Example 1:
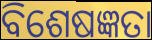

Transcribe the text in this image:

ବିଶେଷଜ୍ଞତା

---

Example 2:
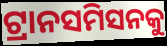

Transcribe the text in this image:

ଟ୍ରାନସମିସନକୁ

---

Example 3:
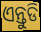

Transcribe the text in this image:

ଏନ୍ତୁଡି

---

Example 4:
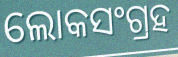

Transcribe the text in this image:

ଲୋକସଂଗ୍ରହ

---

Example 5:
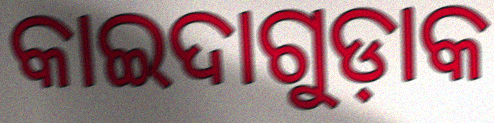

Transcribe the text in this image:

କାଇଦାଗୁଡ଼ାକ